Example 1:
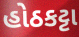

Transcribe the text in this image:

હોઠકટ્ટા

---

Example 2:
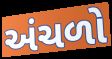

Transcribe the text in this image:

અંચળો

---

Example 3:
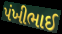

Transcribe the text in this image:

પંખીભાઈ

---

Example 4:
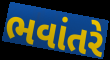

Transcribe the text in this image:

ભવાંતરે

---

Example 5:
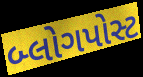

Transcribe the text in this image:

બ્લોગપોસ્ટ